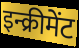
इन्क्रीमेंट